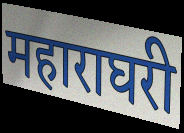
महाराघरी